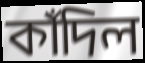
কাঁদিল